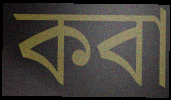
কবা